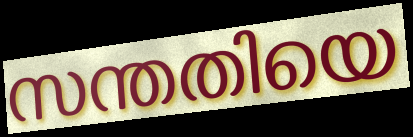
സന്തതിയെ